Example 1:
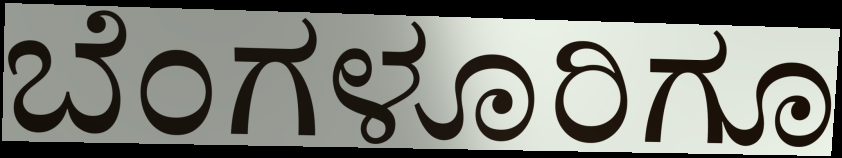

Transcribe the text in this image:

ಬೆಂಗಳೂರಿಗೂ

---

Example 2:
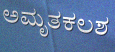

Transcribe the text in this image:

ಅಮೃತಕಲಶ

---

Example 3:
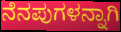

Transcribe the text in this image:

ನೆನಪುಗಳನ್ನಾಗಿ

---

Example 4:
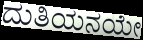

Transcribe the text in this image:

ದುತಿಯನಯೇ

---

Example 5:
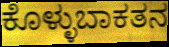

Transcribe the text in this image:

ಕೊಳ್ಳುಬಾಕತನ